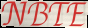
NBTE